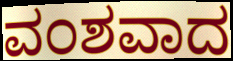
ವಂಶವಾದ